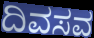
ದಿವಸವ